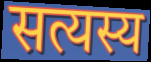
सत्यस्य